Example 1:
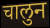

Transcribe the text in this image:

चालुन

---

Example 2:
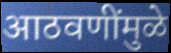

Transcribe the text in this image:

आठवणींमुळे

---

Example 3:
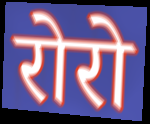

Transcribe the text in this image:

रोरो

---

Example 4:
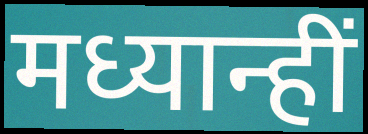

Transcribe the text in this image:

मध्यान्हीं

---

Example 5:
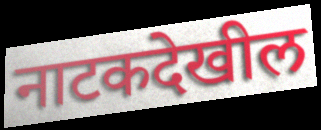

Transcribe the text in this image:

नाटकदेखील